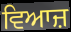
ਵਿਆਜ਼